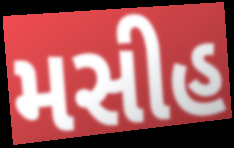
મસીહ